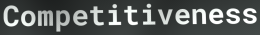
Competitiveness